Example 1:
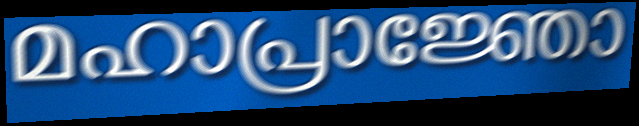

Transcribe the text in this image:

മഹാപ്രാജ്ഞോ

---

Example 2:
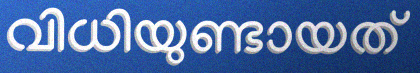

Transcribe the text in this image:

വിധിയുണ്ടായത്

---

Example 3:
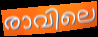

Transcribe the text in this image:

രാവിലെ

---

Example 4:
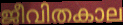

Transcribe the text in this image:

ജീവിതകാല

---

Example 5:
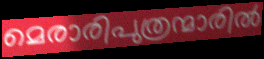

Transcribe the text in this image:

മെരാരിപുത്രന്മാരിൽ